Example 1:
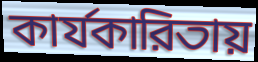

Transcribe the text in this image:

কার্যকারিতায়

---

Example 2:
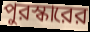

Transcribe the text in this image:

পুরস্কারের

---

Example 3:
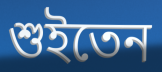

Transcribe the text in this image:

শুইতেন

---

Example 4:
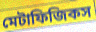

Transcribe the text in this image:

মেটাফিজিকস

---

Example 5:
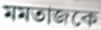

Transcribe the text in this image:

মমতাজকে